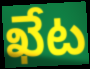
ఖేట